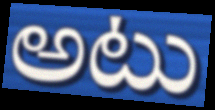
అటు